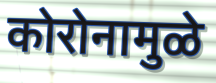
कोरोनामुळे